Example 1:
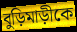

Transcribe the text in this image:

বুড়িমাড়ীকে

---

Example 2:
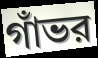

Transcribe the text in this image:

গাঁভর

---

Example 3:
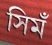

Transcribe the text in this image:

সিমঁ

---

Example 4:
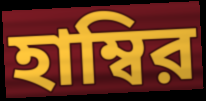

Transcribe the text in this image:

হাম্বির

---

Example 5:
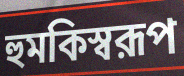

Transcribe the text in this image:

হুমকিস্বরূপ